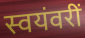
स्वयंवरीं